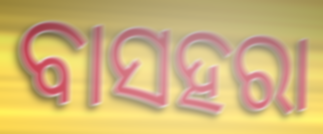
ବାସହରା